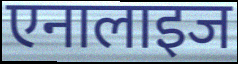
एनालाइज